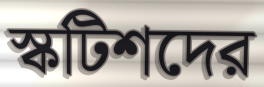
স্কটিশদের